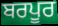
ਬਰਪੂਰ